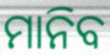
ମାନିବ